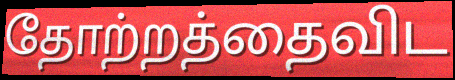
தோற்றத்தைவிட